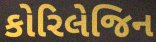
કોરિલેજિન